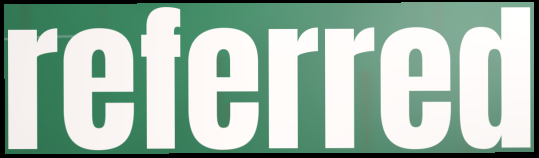
referred